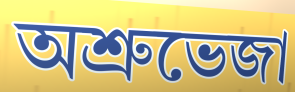
অশ্রুভেজা